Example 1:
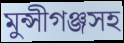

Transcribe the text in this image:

মুন্সীগঞ্জসহ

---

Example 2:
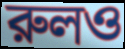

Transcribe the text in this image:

রুলও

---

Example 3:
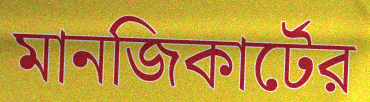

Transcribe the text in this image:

মানজিকার্টের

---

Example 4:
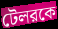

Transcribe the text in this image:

টেলরকে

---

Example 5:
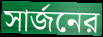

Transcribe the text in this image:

সার্জনের